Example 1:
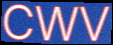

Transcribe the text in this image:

CWV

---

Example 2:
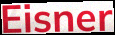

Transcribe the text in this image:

Eisner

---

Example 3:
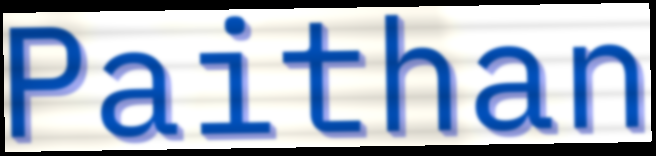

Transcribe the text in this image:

Paithan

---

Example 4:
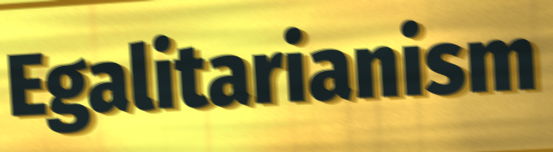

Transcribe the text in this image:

Egalitarianism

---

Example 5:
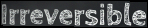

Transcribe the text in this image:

Irreversible